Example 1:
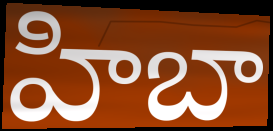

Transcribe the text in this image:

హిబా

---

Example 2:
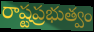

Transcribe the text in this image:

రాష్టప్రభుత్వం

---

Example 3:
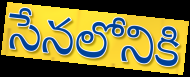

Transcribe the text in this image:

సేనలోనికి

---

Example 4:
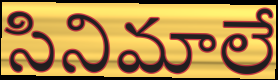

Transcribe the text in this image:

సినిమాలే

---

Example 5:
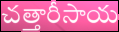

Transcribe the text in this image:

చత్తారీసాయ